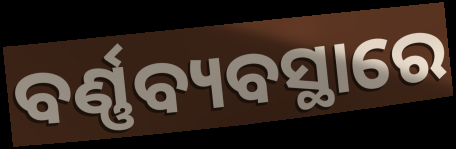
ବର୍ଣ୍ଣବ୍ୟବସ୍ଥାରେ